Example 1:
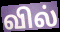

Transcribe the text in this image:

வில்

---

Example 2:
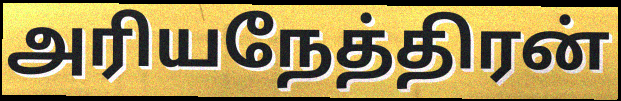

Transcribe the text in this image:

அரியநேத்திரன்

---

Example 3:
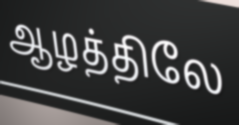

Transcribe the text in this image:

ஆழத்திலே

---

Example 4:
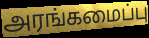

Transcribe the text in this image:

அரங்கமைப்பு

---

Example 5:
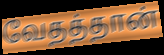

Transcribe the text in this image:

வேதத்தான்